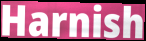
Harnish